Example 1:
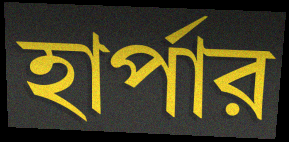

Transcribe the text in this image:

হার্পার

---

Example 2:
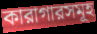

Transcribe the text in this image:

কারাগারসমূহ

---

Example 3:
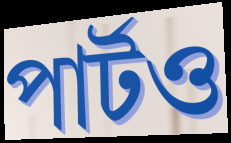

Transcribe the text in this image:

পার্টও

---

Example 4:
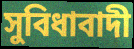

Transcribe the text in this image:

সুবিধাবাদী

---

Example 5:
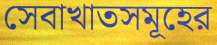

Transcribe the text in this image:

সেবাখাতসমূহের